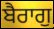
ਬੈਰਾਗੁ